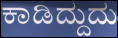
ಕಾಡಿದ್ದುದು